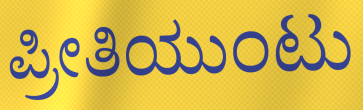
ಪ್ರೀತಿಯುಂಟು